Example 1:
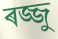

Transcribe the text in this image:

ৰজ্জু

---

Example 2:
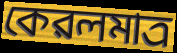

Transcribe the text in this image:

কেৱলমাত্ৰ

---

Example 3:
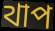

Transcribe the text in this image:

থাপ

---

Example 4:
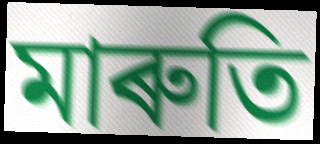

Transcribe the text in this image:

মাৰুতি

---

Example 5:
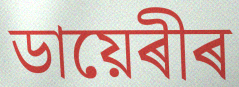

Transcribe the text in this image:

ডায়েৰীৰ